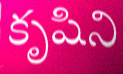
కృషిని